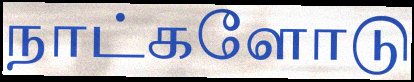
நாட்களோடு